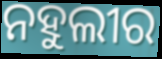
ନହୁଲୀର